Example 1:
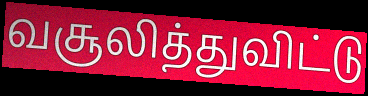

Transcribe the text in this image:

வசூலித்துவிட்டு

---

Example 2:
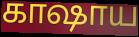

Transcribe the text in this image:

காஷாய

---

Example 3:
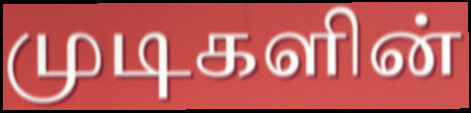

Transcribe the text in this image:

முடிகளின்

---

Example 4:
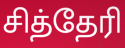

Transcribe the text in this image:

சித்தேரி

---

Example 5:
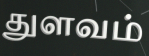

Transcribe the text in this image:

துளவம்